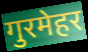
गुरमेहर